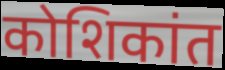
कोशिकांत